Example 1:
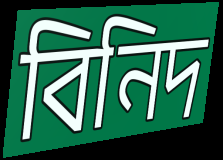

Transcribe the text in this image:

বিনিদ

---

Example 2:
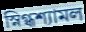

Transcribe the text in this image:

স্নিগ্ধশ্যামল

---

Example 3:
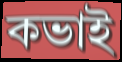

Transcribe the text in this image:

কভাই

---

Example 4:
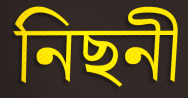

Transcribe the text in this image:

নিছনী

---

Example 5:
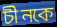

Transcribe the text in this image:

চীনকে